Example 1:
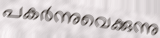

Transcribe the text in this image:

പകർന്നുവെക്കുന്നു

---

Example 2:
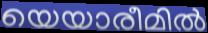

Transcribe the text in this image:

യെയാരീമിൽ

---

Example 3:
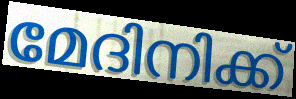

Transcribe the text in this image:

മേദിനിക്ക്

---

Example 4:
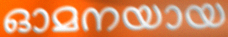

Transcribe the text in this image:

ഓമനയായ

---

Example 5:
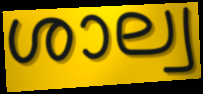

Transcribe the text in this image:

ശാല്വ